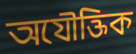
অযৌক্তিক